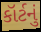
કૉર્ટનું